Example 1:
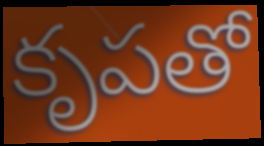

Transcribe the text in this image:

కృపతో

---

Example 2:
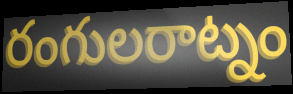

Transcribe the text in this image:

రంగులరాట్నం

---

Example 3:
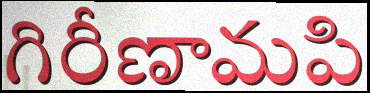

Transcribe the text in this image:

గిరీణామపి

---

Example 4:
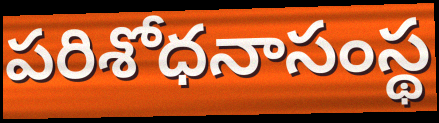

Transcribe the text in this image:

పరిశోధనాసంస్థ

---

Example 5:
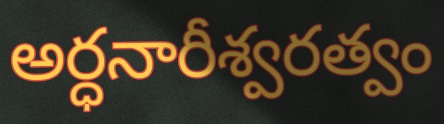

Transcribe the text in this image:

అర్ధనారీశ్వరత్వం